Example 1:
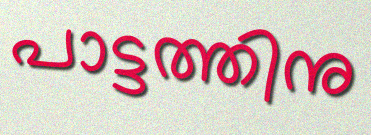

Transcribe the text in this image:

പാട്ടത്തിനു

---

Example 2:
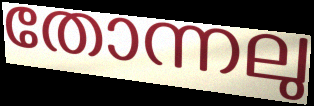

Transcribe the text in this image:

തോന്നലു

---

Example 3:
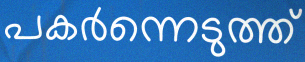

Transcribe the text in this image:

പകർന്നെടുത്ത്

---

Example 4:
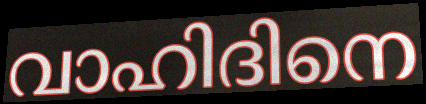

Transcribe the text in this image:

വാഹിദിനെ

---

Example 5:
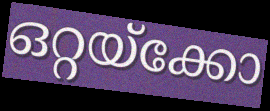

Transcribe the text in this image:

ഒറ്റയ്ക്കോ